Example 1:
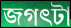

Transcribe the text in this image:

জগৎটা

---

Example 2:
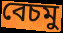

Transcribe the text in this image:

বেচমু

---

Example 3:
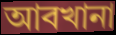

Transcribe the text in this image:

আবখানা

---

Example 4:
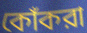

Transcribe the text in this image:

কোঁকরা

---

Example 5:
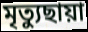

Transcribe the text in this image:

মৃত্যুছায়া